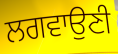
ਲਗਵਾਉਣੀ